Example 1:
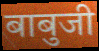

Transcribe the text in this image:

बाबुजी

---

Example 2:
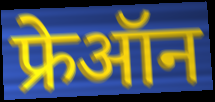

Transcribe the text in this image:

फ्रेऑन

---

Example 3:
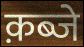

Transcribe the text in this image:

क़ब्ज़े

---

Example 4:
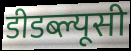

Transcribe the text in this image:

डीडब्ल्यूसी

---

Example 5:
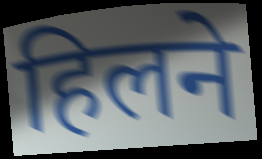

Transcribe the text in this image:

हिलने